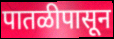
पातळीपासून